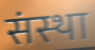
संस्था